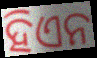
ହିଏନ